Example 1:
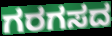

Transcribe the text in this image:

ಗರಗಸದ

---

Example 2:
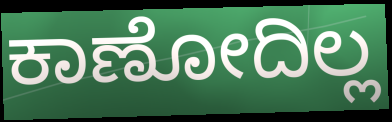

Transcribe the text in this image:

ಕಾಣೋದಿಲ್ಲ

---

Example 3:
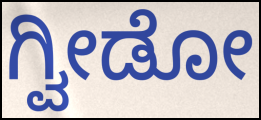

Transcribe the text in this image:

ಗ್ವೀಡೋ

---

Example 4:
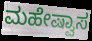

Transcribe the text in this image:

ಮಹೇಷ್ವಾಸ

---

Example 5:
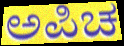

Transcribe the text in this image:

ಅಪಿಚ